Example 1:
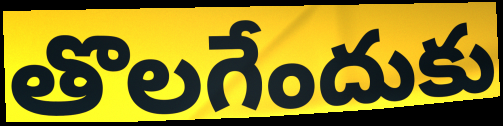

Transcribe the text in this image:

తొలగేందుకు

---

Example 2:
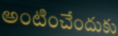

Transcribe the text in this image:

అంటించేందుకు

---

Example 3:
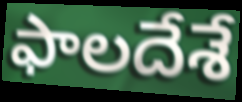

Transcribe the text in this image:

ఫాలదేశే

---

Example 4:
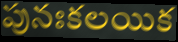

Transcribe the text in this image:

పునఃకలయిక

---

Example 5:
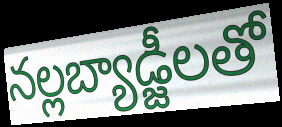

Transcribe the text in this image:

నల్లబ్యాడ్జీలతో